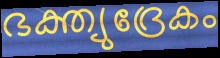
ഭക്ത്യുദ്രേകം